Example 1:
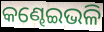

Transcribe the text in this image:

କଣ୍ଢେଇଭଳି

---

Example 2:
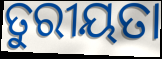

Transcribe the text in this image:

ତୁରୀୟତା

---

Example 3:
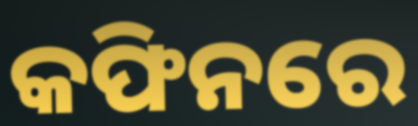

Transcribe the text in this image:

କଫିନରେ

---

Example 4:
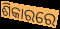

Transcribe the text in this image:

ଶିକାରରେ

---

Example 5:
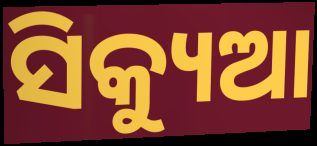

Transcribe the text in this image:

ସିକ୍ୟୁଆ